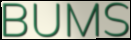
BUMS